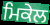
ਮਿਕੇਲ